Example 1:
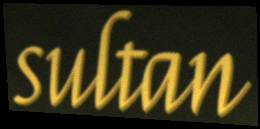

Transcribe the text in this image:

sultan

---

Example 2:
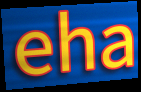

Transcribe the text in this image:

eha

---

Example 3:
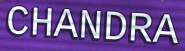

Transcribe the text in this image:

CHANDRA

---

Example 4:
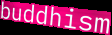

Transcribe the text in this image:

buddhism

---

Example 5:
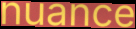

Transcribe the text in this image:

nuance